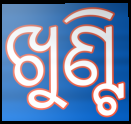
ଖୁଣ୍ଟି